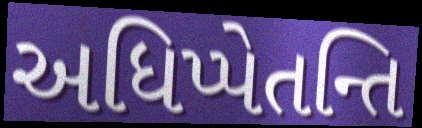
અધિપ્પેતન્તિ